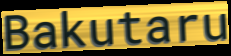
Bakutaru